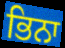
ਭਿਨਾ